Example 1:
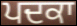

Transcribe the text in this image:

ਪਦਕਾ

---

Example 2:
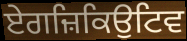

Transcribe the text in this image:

ਏਗਜ਼ਿਕਿਉਟਿਵ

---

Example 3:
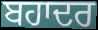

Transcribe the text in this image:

ਬਹਾਦਰ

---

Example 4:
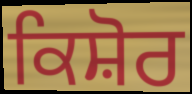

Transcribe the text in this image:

ਕਿਸ਼ੋਰ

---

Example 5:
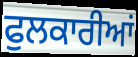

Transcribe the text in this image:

ਫੁਲਕਾਰੀਆਂ